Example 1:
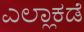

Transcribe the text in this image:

ಎಲ್ಲಾಕಡೆ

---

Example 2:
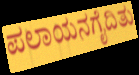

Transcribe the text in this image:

ಪಲಾಯನಗೈದಿತು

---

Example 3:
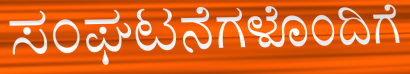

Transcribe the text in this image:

ಸಂಘಟನೆಗಳೊಂದಿಗೆ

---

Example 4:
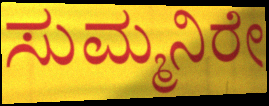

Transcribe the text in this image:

ಸುಮ್ಮನಿರೇ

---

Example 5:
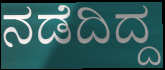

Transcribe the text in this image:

ನಡೆದಿದ್ದ